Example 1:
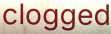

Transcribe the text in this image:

clogged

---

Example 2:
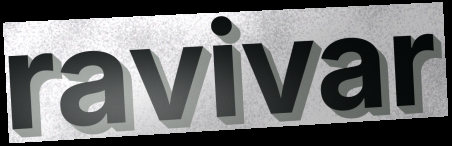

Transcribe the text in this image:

ravivar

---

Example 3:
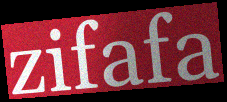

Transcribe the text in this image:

zifafa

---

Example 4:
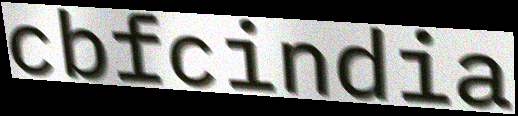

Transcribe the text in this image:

cbfcindia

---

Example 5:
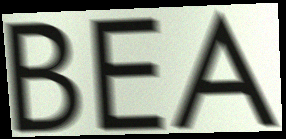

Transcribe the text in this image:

BEA